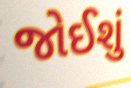
જોઈશું